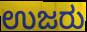
ಉಜರು